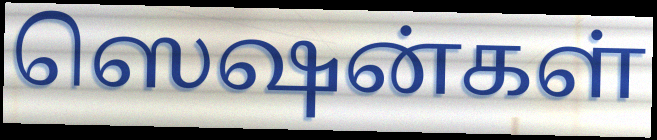
ஸெஷன்கள்